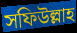
সফিউল্লাহ